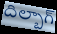
దిల్బాగ్